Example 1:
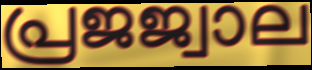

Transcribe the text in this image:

പ്രജജ്വാല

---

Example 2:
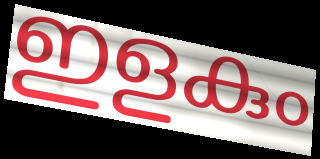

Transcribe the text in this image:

ഇളകും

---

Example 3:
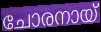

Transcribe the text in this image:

ചോരനായ്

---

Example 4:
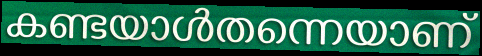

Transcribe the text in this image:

കണ്ടയാൾതന്നെയാണ്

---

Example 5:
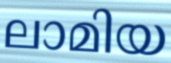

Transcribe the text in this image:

ലാമിയ